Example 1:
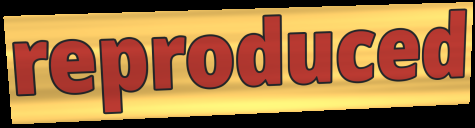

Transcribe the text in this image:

reproduced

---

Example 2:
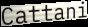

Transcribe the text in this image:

Cattani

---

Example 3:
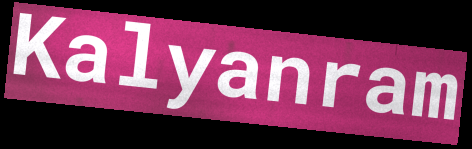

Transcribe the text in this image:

Kalyanram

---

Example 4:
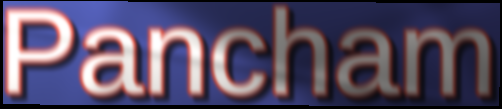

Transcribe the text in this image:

Pancham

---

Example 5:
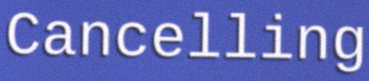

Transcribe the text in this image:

Cancelling